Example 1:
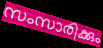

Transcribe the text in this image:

സംസാരിക്കും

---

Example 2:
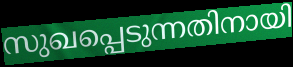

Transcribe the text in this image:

സുഖപ്പെടുന്നതിനായി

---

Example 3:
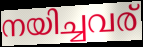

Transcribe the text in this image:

നയിച്ചവര്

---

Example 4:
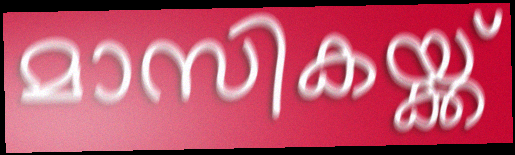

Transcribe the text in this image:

മാസികയ്ക്ക്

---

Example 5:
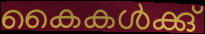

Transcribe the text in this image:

കൈകൾക്കു്